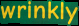
wrinkly